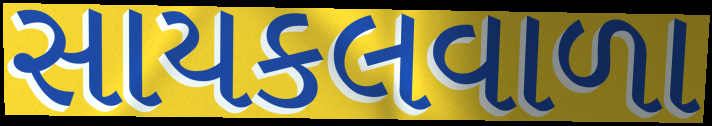
સાયકલવાળા